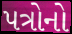
પત્રોનો